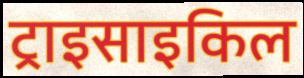
ट्राइसाइकिल